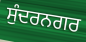
ਸੁੰਦਰਨਗਰ